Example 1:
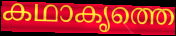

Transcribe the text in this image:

കഥാകൃത്തെ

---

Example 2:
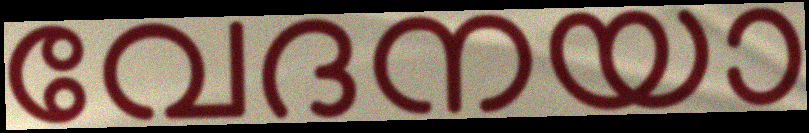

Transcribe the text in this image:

വേദനയാ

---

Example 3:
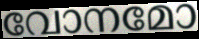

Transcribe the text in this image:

വോനമോ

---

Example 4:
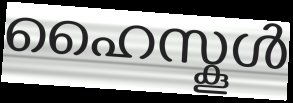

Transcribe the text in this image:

ഹൈസ്കൂൾ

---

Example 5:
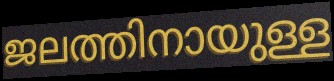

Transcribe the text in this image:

ജലത്തിനായുള്ള